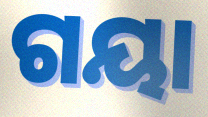
ଗୟା